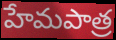
హేమపాత్ర